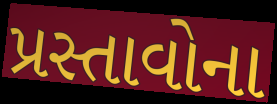
પ્રસ્તાવોના